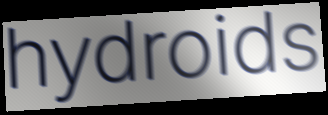
hydroids